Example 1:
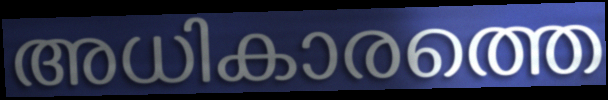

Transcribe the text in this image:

അധികാരത്തെ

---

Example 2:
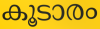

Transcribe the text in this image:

കൂടാരം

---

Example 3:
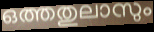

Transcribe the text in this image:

ഒത്തതുലാസും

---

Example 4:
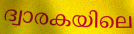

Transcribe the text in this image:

ദ്വാരകയിലെ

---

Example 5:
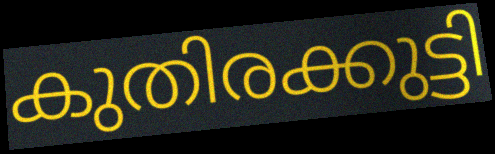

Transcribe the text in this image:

കുതിരക്കുട്ടി